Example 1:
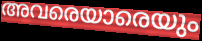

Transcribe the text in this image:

അവരെയാരെയും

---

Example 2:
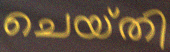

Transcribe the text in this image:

ചെയ്‌തി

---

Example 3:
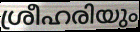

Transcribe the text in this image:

ശ്രീഹരിയും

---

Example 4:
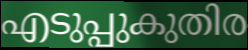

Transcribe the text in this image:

എടുപ്പുകുതിര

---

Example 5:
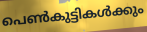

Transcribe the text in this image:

പെൺകുട്ടികൾക്കും